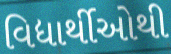
વિદ્યાર્થીઓથી